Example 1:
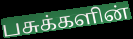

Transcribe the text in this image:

பசுக்களின்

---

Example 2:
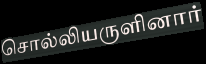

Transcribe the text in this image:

சொல்லியருளினார்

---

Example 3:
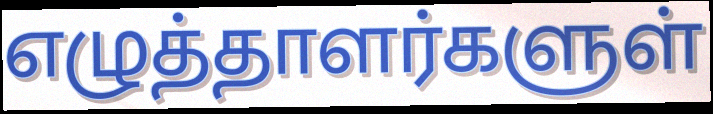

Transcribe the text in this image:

எழுத்தாளர்களுள்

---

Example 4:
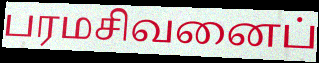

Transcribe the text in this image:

பரமசிவனைப்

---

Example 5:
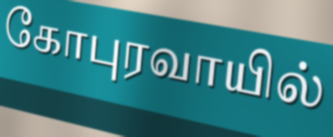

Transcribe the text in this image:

கோபுரவாயில்